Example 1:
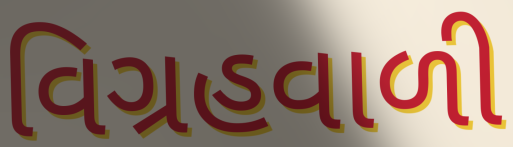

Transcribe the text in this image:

વિગ્રહવાળી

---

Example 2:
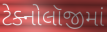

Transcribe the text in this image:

ટેક્નોલૉજીમાં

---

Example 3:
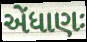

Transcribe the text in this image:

એંધાણઃ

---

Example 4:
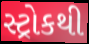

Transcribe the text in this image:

સ્ટ્રોકથી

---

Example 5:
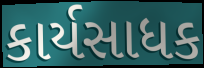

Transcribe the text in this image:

કાર્યસાધક